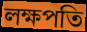
লক্ষপতি